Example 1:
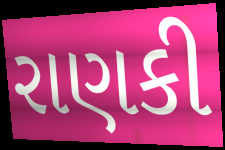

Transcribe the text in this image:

રાણકી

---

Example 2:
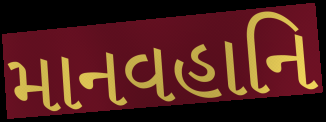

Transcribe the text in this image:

માનવહાનિ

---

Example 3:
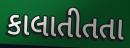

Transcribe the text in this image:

કાલાતીતતા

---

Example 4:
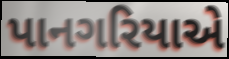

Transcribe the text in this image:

પાનગરિયાએ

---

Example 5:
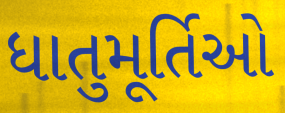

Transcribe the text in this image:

ધાતુમૂર્તિઓ